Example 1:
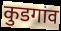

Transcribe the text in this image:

कुडगांव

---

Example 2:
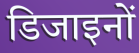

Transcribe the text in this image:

डिजाइनों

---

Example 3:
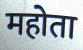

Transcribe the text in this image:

महोता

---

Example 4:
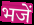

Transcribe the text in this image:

भजें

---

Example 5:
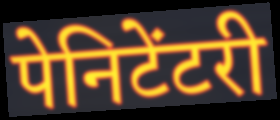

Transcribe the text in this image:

पेनिटेंटरी